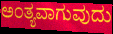
ಅಂತ್ಯವಾಗುವುದು